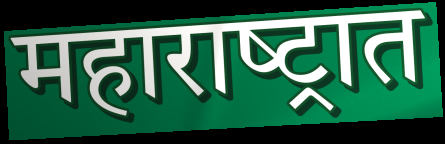
महाराष्‍ट्रात